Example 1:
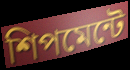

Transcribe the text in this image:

শিপমেন্টে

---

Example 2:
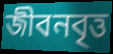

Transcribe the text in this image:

জীবনবৃত্ত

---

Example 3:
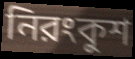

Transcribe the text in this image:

নিরংকুশ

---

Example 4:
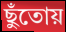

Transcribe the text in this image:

ছুঁতোয়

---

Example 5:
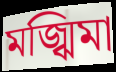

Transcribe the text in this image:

মজ্ঝিমা